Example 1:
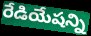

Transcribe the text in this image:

రేడియేషన్ని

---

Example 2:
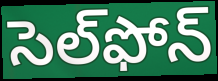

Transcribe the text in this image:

సెల్‌ఫోన్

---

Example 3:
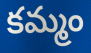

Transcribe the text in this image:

కమ్మం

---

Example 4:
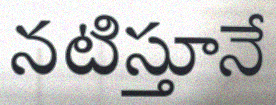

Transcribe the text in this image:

నటిస్తూనే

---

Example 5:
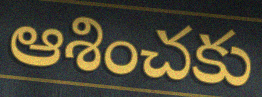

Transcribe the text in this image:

ఆశించకు